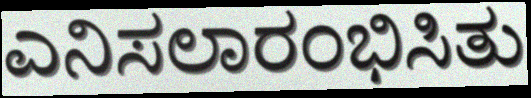
ಎನಿಸಲಾರಂಭಿಸಿತು